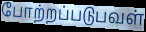
போற்றப்படுபவள்